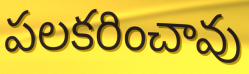
పలకరించావు